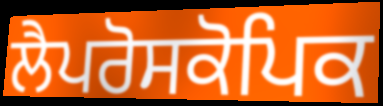
ਲੈਪਰੋਸਕੋਪਿਕ